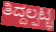
ತಿದ್ದಲ್ಪಟ್ಟ